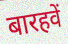
बारहवें